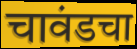
चावंडचा